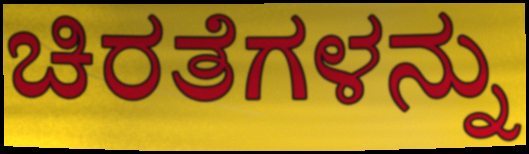
ಚಿರತೆಗಳನ್ನು